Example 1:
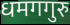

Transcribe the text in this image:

धमगगुरु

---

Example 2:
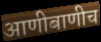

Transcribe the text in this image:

आणीबाणीच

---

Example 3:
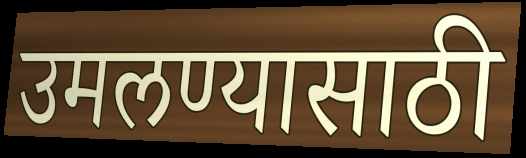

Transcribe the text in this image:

उमलण्यासाठी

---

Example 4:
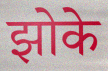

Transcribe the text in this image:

झोके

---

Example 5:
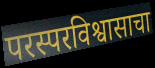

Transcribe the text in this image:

परस्परविश्वासाचा